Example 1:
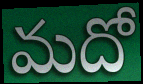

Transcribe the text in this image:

మదో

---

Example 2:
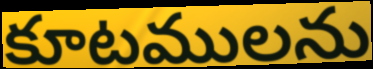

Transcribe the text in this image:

కూటములను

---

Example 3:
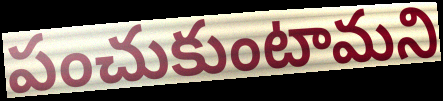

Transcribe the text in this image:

పంచుకుంటామని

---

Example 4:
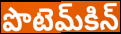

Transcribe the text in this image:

పొటెమ్‌కిన్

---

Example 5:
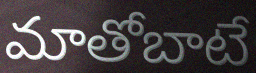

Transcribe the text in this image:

మాతోబాటే